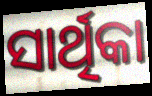
ସାର୍ଥିକା